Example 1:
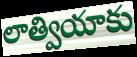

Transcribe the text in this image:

లాత్వియాకు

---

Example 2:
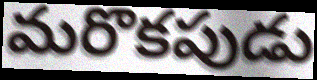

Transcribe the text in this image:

మరొకపుడు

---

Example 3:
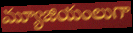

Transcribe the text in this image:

మ్యూజియంలుగా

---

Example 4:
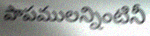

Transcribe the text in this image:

పాపములన్నింటినీ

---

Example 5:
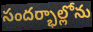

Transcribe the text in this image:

సందర్భాల్లోను